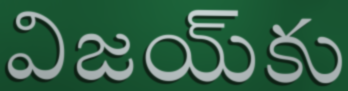
విజయ్‌కు